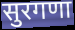
सुरगणा